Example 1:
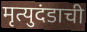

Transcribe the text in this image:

मृत्युदंडाची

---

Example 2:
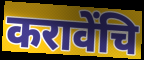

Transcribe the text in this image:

करावेंचि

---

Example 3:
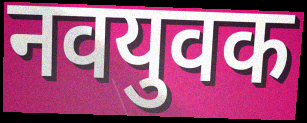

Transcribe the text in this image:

नवयुवक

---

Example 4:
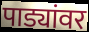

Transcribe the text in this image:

पाड्यांवर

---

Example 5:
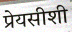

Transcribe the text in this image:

प्रेयसीशी